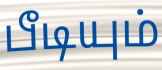
பீடியும்